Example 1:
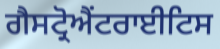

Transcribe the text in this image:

ਗੈਸਟ੍ਰੋਐਂਟਰਾਈਟਿਸ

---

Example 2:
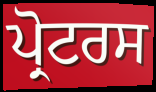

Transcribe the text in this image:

ਪ੍ਰੋਟਰਸ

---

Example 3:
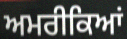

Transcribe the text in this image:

ਅਮਰੀਕਿਆਂ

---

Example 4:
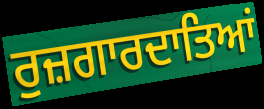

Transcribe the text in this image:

ਰੁਜ਼ਗਾਰਦਾਤਿਆਂ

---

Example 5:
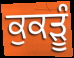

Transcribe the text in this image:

ਕੁਕੜੂੰ